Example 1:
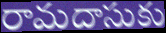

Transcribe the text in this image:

రామదాసుకు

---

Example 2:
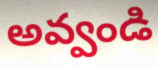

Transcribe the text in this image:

అవ్వండి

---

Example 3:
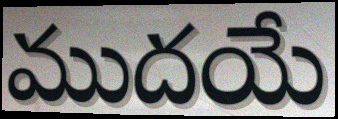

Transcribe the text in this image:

ముదయే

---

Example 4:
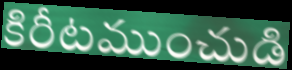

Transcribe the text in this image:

కిరీటముంచుడి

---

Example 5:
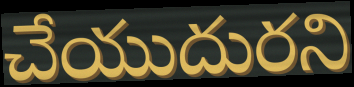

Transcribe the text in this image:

చేయుదురని